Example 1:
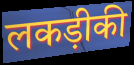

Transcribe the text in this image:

लकड़ीकी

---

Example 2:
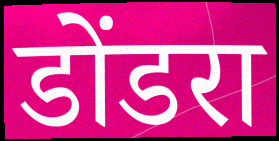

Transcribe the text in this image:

डोंडरा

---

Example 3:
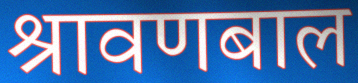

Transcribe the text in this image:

श्रावणबाल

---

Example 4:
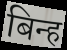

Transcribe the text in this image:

बिन्ह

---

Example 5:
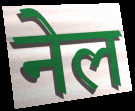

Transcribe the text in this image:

नेल